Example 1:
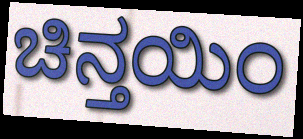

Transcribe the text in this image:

ಚಿನ್ತಯಿಂ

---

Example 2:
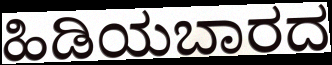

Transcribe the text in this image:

ಹಿಡಿಯಬಾರದ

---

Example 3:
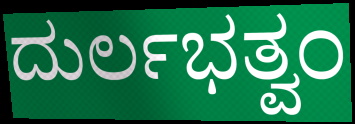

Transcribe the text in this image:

ದುರ್ಲಭತ್ವಂ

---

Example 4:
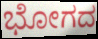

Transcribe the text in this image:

ಭೋಗದ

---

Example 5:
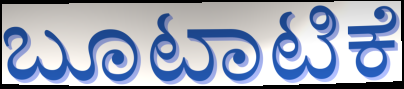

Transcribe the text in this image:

ಬೂಟಾಟಿಕೆ